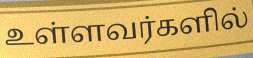
உள்ளவர்களில்